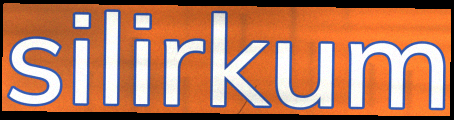
silirkum